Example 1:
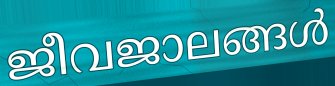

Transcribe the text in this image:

ജീവജാലങ്ങൾ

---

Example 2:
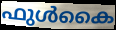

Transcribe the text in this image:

ഫുൾകൈ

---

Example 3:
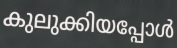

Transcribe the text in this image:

കുലുക്കിയപ്പോൾ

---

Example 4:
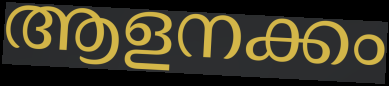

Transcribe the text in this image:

ആളനക്കം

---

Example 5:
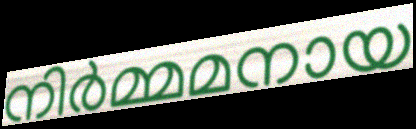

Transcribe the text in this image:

നിർമ്മമനായ